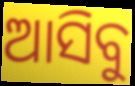
ଆସିବୁ